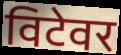
विटेवर